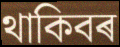
থাকিবৰ